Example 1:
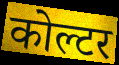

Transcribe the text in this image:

कोल्टर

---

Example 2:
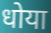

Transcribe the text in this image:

धोया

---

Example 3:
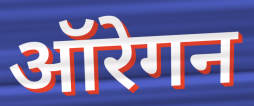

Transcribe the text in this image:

ऑरेगन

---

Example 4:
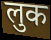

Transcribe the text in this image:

लुक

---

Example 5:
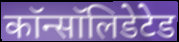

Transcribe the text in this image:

कॉन्सॉलिडेटेड